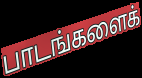
பாடங்களைக்